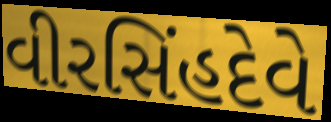
વીરસિંહદેવે